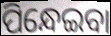
ପିନ୍ଧେଇବା